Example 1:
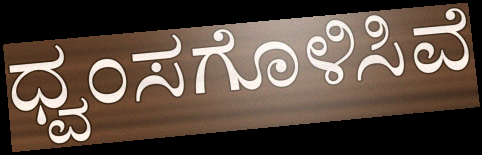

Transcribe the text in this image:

ಧ್ವಂಸಗೊಳಿಸಿವೆ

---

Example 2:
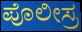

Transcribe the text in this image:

ಪೊಲೀಸ್ರ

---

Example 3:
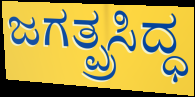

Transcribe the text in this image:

ಜಗತ್ಪ್ರಸಿದ್ಧ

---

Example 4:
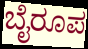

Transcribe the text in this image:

ಬೈರೂಪ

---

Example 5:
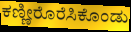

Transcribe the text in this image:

ಕಣ್ಣೀರೊರೆಸಿಕೊಂಡು